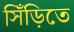
সিঁড়িতে